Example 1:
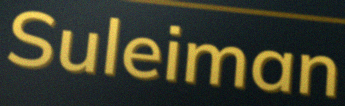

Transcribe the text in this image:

Suleiman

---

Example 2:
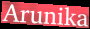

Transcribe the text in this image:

Arunika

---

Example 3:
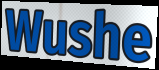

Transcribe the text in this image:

Wushe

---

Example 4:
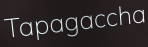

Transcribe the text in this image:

Tapagaccha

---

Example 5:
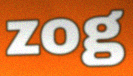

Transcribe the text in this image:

zog